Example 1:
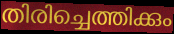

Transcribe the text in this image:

തിരിച്ചെത്തിക്കും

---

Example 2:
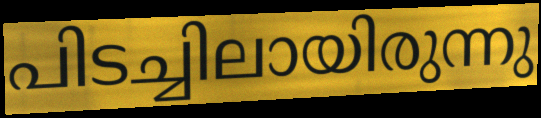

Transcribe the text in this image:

പിടച്ചിലായിരുന്നു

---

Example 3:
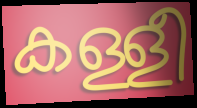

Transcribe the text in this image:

കള്ളീ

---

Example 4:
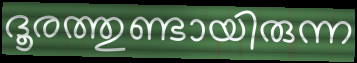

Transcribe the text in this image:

ദൂരത്തുണ്ടായിരുന്ന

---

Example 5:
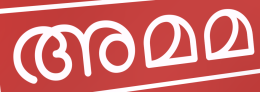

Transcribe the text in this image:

അമമ